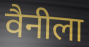
वैनीला